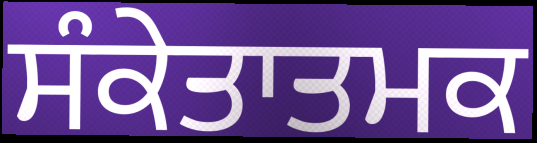
ਸੰਕੇਤਾਤਮਕ